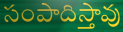
సంపాదిస్తావు